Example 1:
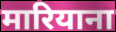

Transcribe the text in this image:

मारियाना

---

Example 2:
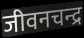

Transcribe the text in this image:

जीवनचन्द्र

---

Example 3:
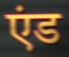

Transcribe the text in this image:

एंड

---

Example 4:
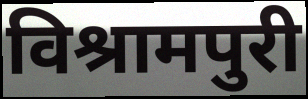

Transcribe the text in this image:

विश्रामपुरी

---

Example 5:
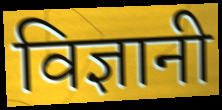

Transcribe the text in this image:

विज्ञानी